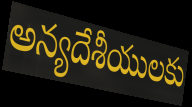
అన్యదేశీయులకు